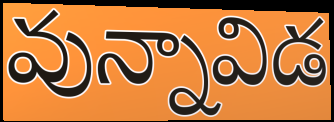
వున్నావిడ